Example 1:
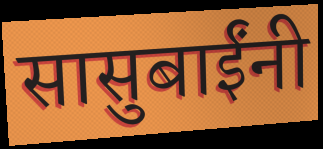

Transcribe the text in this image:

सासुबाईंनी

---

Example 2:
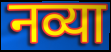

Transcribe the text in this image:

नव्या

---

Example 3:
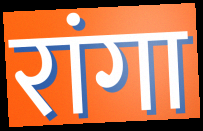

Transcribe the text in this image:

रांगा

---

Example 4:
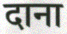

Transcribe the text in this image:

दाना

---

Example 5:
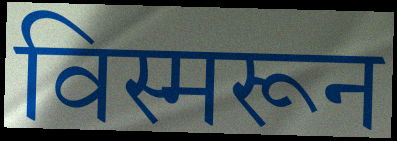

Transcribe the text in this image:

विस्मरून